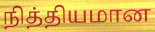
நித்தியமான